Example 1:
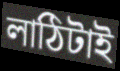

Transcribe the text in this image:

লাঠিটাই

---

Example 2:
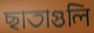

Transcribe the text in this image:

ছাতাগুলি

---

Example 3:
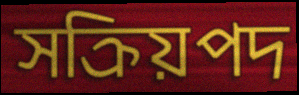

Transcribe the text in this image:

সক্রিয়পদ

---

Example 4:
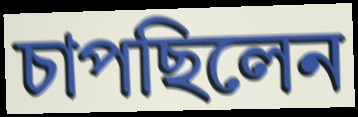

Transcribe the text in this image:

চাপছিলেন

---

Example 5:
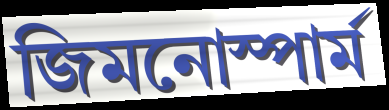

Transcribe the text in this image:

জিমনোস্পার্ম